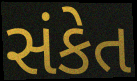
સંકેત